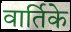
वार्तिके